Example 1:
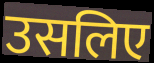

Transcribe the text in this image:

उसलिए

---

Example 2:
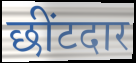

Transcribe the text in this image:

छींटदार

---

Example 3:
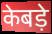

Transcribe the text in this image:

केबड़े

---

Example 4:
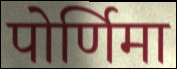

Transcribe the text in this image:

पोर्णिमा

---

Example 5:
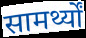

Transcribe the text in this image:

सामर्थ्यों